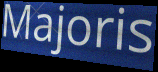
Majoris